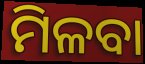
ମିଳବା